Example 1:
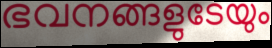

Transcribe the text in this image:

ഭവനങ്ങളുടേയും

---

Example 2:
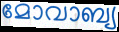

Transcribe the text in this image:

മോവാബ്യ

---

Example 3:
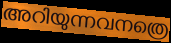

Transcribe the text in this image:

അറിയുന്നവനത്രെ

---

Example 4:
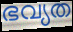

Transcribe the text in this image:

ഭവ്യത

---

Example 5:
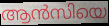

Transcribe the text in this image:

ആൻസിയെ